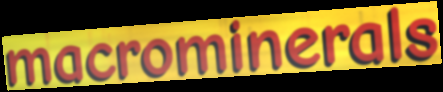
macrominerals